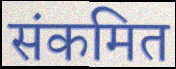
संकमित